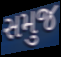
સમુજ